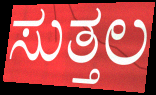
ಸುತ್ತಲ